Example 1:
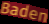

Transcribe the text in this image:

Baden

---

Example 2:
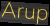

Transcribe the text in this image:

Arup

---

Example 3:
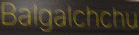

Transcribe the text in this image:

Balgalchchu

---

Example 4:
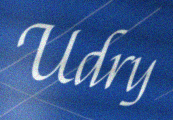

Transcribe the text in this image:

Udry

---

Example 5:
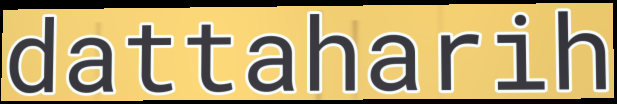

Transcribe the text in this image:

dattaharih